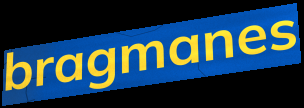
bragmanes